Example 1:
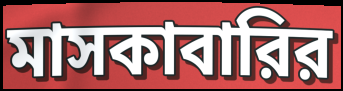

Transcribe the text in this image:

মাসকাবারির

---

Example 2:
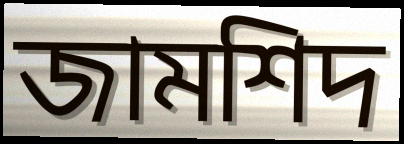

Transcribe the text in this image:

জামশিদ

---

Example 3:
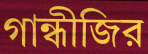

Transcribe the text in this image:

গান্ধীজির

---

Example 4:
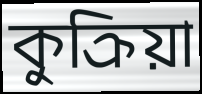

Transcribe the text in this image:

কুক্রিয়া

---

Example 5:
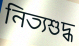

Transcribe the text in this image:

নিত্যশুদ্ধ